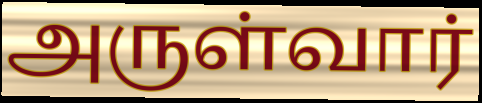
அருள்வார்